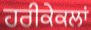
ਹਰੀਕੇਕਲਾਂ